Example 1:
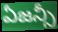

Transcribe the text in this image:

ఏజన్సీ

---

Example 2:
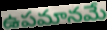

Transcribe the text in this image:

ఉపమానమే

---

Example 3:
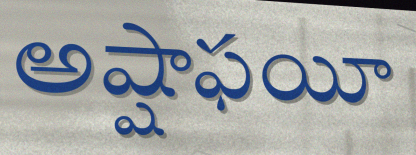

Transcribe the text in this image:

అష్షాఫయీ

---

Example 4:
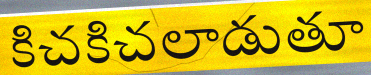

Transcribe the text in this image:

కిచకిచలాడుతూ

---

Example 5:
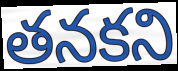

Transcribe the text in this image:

తనకని